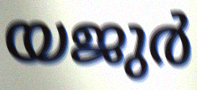
യജുർ